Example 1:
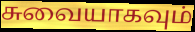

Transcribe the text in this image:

சுவையாகவும்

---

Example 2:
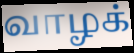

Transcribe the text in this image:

வாழக்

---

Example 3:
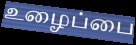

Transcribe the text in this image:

உழைப்பை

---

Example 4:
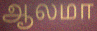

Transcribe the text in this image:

ஆலமா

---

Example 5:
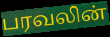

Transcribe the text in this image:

பரவலின்